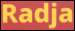
Radja